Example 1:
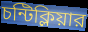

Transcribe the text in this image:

চন্টিক্লিয়ার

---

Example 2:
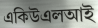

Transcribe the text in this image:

একিউএলআই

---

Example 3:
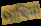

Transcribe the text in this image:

পাখিদা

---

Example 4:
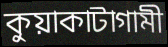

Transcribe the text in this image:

কুয়াকাটাগামী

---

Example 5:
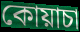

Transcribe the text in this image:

কোয়াচা